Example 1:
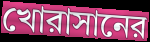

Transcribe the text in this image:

খোরাসানের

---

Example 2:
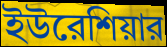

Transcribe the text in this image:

ইউরেশিয়ার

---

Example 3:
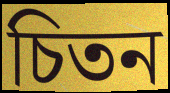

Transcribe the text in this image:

চিতন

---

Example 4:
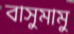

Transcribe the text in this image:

বাসুমামু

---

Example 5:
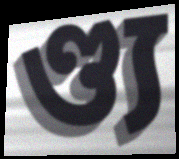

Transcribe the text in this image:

ণ্ড্য